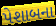
પેશાબના